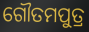
ଗୌତମପୁତ୍ର